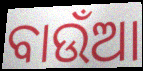
ବାଉଁଆ